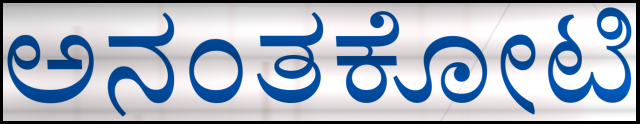
ಅನಂತಕೋಟಿ